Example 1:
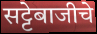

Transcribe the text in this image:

सट्टेबाजीचे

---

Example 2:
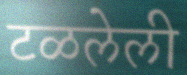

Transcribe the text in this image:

टळलेली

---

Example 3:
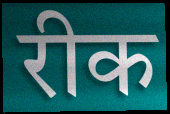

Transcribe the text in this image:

रीक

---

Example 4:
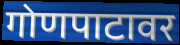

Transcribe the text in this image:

गोणपाटावर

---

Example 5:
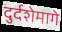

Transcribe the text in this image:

दुर्दशेमागे